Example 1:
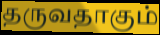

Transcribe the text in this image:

தருவதாகும்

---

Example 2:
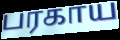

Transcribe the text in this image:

பரகாய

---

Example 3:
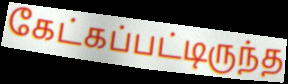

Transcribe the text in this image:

கேட்கப்பட்டிருந்த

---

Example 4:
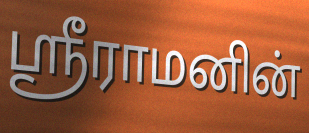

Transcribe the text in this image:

ஸ்ரீராமனின்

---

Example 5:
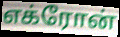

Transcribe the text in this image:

எக்ரோன்